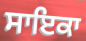
ਸਾਇਕਾ